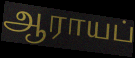
ஆராயப்